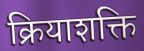
क्रियाशक्ति